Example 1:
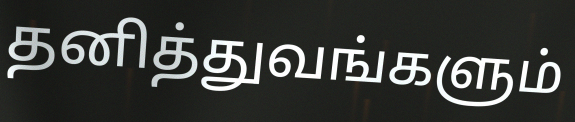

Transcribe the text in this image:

தனித்துவங்களும்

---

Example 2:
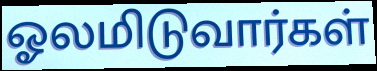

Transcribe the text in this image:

ஓலமிடுவார்கள்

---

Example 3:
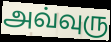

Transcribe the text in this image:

அவ்வுரு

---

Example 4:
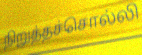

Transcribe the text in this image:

நிறுத்தச்சொல்லி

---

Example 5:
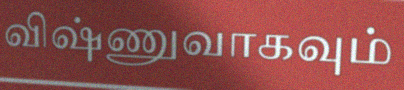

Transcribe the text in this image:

விஷ்ணுவாகவும்